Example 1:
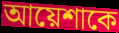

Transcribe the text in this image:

আয়েশাকে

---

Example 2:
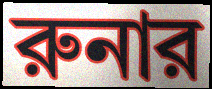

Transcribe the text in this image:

রুনার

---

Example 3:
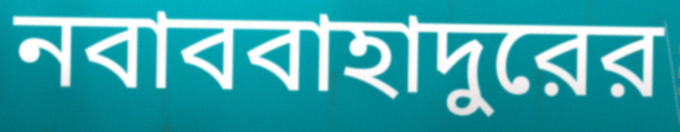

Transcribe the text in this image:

নবাববাহাদুরের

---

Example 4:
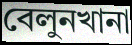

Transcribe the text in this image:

বেলুনখানা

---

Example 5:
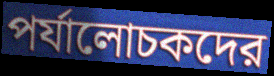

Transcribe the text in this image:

পর্যালোচকদের